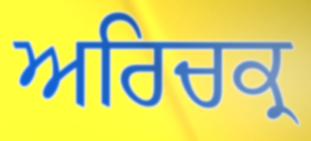
ਅਰਿਚਕ੍ਰ